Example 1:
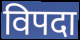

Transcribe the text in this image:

विपदा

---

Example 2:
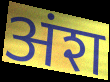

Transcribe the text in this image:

अंश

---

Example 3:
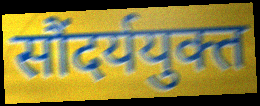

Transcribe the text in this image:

सौंदर्ययुक्त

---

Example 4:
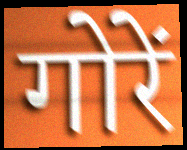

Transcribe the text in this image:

गोरें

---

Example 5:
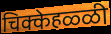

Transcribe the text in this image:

चिक्केहळ्ळी